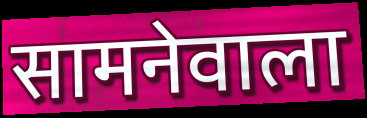
सामनेवाला